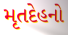
મૃતદેહનો